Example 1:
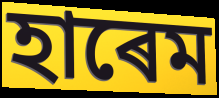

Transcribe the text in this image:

হাৰেম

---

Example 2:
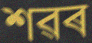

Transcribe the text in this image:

শৱৰ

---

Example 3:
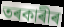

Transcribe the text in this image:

তৰকাৰীৰ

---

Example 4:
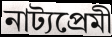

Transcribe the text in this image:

নাট্যপ্ৰেমী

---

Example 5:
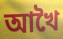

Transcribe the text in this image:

আখৈ